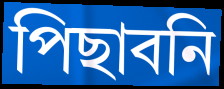
পিছাবনি